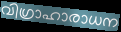
വിഗ്രാഹാരാധന